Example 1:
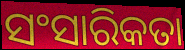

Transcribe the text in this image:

ସଂସାରିକତା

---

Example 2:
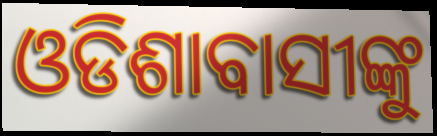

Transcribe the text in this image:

ଓଡିଶାବାସୀଙ୍କୁ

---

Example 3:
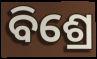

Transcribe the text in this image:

ବିଶ୍ରେ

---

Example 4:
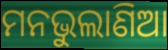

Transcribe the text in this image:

ମନଭୁଲାଣିଆ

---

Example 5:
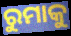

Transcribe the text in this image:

ରୁମାକୁ